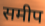
समीप